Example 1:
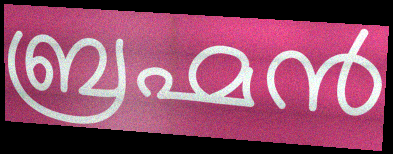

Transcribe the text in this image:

ബ്രഹ്മൻ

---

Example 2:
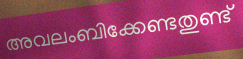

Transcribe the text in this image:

അവലംബിക്കേണ്ടതുണ്ട്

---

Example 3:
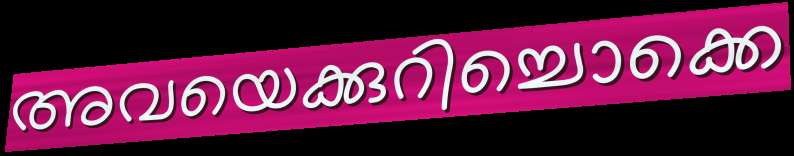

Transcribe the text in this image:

അവയെക്കുറിച്ചൊക്കെ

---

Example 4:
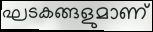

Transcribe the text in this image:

ഘടകങ്ങളുമാണ്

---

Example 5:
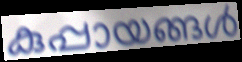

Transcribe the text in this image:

കുപ്പായങ്ങൾ